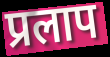
प्रलाप